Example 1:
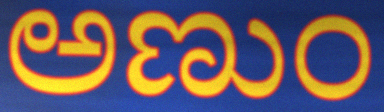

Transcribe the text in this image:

ಅಣುಂ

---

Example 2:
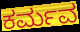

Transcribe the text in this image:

ಕರ್ಮವ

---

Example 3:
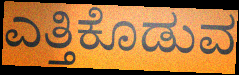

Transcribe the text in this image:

ಎತ್ತಿಕೊಡುವ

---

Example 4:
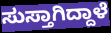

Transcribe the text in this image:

ಸುಸ್ತಾಗಿದ್ದಾಳೆ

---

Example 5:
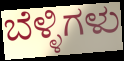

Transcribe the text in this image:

ಬೆಳ್ಳಿಗಳು